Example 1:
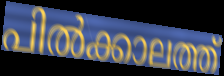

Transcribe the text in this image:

പിൽക്കാലത്ത്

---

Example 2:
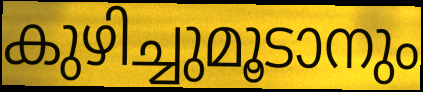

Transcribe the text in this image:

കുഴിച്ചുമൂടാനും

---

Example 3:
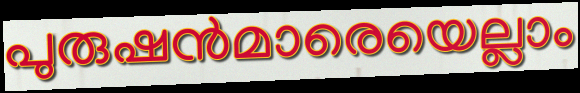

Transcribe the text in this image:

പുരുഷൻമാരെയെല്ലാം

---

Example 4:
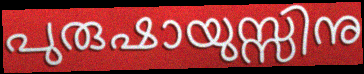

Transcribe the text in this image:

പുരുഷായുസ്സിനു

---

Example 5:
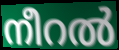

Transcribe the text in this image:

നീറൽ